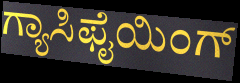
ಗ್ಯಾಸಿಫೈಯಿಂಗ್